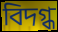
বিদগ্ধ